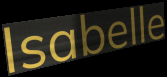
Isabelle